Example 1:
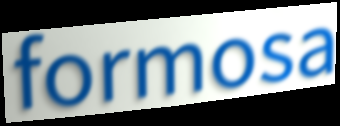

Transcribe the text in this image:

formosa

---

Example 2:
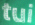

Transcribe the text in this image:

tui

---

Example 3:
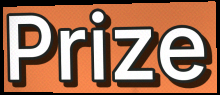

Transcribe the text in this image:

Prize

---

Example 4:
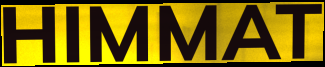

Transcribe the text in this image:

HIMMAT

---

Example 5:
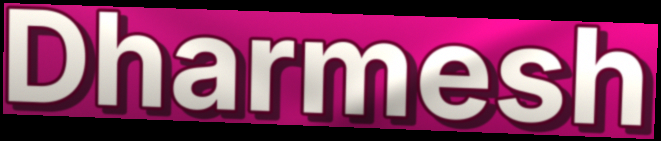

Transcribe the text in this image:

Dharmesh